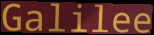
Galilee